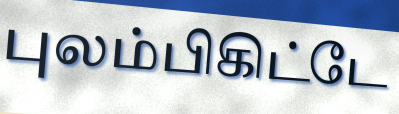
புலம்பிகிட்டே